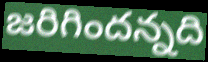
జరిగిందన్నది